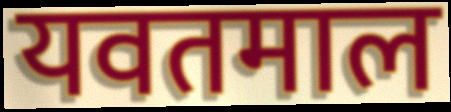
यवतमाल